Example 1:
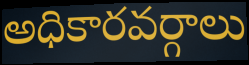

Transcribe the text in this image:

అధికారవర్గాలు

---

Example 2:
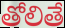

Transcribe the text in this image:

తోలితే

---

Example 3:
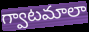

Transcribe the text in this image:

గ్వాటమాలా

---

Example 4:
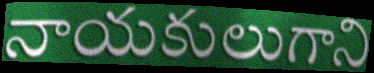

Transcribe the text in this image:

నాయకులుగాని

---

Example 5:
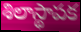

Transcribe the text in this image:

శిలాస్థాపక